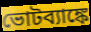
ভোটব্যাঙ্কে